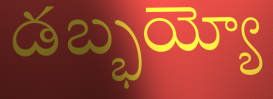
డబ్భయ్యో